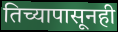
तिच्यापासूनही